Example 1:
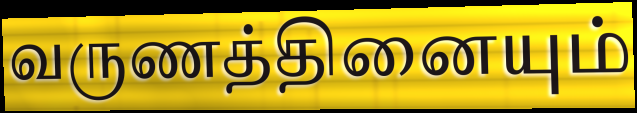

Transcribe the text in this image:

வருணத்தினையும்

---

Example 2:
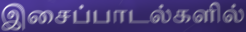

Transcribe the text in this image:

இசைப்பாடல்களில்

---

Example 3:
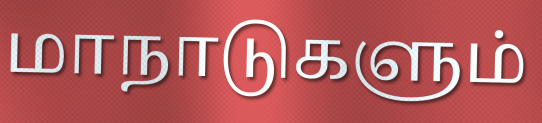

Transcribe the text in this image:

மாநாடுகளும்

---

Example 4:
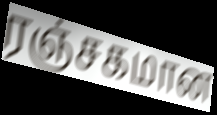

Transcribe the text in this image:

ரஞ்சகமான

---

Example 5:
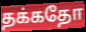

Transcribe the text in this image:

தக்கதோ